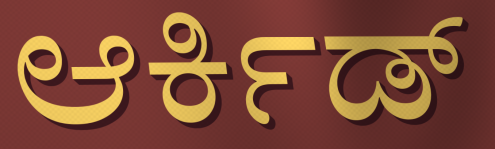
ಆರ್ಕಿಡ್